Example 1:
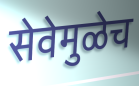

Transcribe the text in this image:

सेवेमुळेच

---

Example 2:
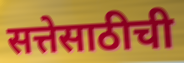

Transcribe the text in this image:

सत्तेसाठीची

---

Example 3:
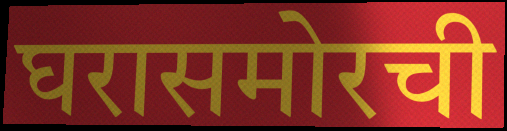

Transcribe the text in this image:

घरासमोरची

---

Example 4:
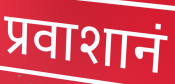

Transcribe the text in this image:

प्रवाशानं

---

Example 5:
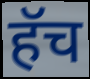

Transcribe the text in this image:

हॅच